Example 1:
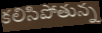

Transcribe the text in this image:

కలిసిపోతున్న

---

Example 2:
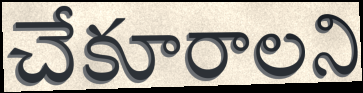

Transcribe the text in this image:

చేకూరాలని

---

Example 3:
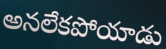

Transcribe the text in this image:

అనలేకపోయాడు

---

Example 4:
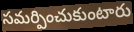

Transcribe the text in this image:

సమర్పించుకుంటారు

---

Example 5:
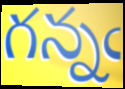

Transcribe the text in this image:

గన్నఁ